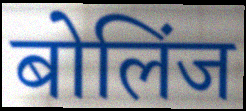
बोलिंज